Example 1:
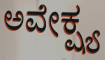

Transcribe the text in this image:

ಅವೇಕ್ಷ್ಯ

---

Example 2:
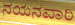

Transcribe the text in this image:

ನಯನವಾರಿ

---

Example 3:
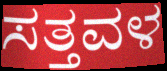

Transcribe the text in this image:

ಸತ್ತವಳ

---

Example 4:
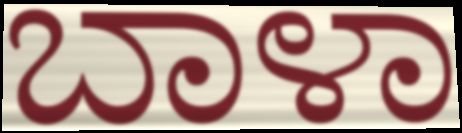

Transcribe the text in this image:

ಬಾಳಾ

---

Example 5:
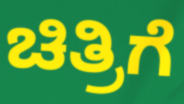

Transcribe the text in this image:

ಚಿತ್ರಿಗೆ